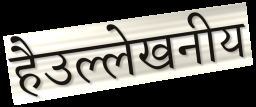
हैउल्लेखनीय